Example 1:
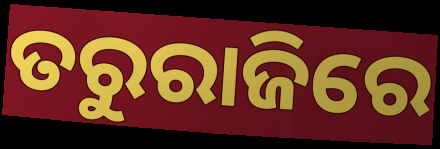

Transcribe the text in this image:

ତରୁରାଜିରେ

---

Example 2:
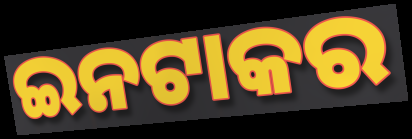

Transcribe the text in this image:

ଇନଟାକର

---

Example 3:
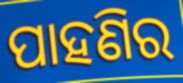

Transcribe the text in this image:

ପାହଣିର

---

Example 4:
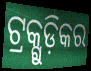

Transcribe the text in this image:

ଟ୍ରକ୍ଗୁଡ଼ିକର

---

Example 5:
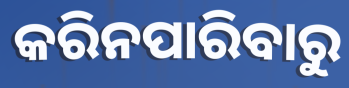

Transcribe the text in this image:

କରିନପାରିବାରୁ